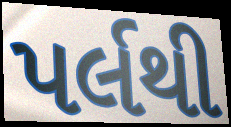
પર્લથી